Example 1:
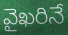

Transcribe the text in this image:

వైఖరినే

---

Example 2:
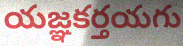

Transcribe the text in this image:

యజ్ఞకర్తయగు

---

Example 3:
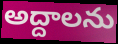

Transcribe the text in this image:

అద్దాలను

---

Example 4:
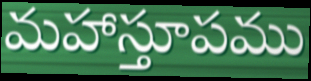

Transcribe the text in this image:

మహాస్తూపము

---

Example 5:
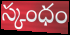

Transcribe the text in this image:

స్కంధం